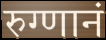
रुग्णानं